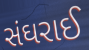
સંઘરાઈ